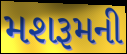
મશરૂમની